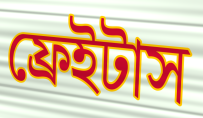
ফ্রেইটাস